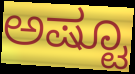
ಅಷ್ಟೂ